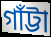
গাঁট্টা